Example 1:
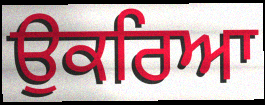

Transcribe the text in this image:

ਉਕਰਿਆ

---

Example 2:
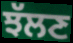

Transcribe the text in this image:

ਝੱਲਣ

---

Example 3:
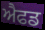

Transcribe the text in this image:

ਐਫਡ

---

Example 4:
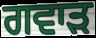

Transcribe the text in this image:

ਗਵਾੜ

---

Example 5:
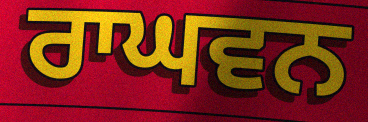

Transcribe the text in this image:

ਰਾਘਵਨ